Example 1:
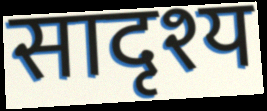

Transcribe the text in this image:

सादृश्य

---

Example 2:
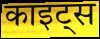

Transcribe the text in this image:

काइट्स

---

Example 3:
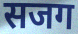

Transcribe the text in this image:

सजग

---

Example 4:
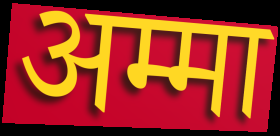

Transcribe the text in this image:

अम्मा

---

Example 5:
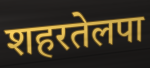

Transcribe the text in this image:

शहरतेलपा